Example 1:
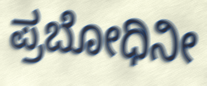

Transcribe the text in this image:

ಪ್ರಬೋಧಿನೀ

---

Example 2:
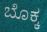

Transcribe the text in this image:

ಬೊಕ್ಕ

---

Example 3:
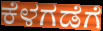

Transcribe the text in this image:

ಕೆಳಗಡೆಗೆ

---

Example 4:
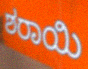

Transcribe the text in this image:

ಶರಾಯಿ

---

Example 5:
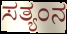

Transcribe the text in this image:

ಸತ್ಯಂನ